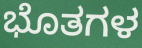
ಭೊತಗಳ